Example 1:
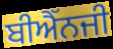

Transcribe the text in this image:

ਬੀਐੱਨਜੀ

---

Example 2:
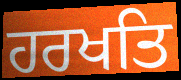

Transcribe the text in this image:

ਹਰਖਤਿ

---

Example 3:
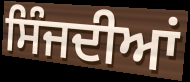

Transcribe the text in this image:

ਸਿੰਜਦੀਆਂ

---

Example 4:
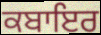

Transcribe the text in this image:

ਕਬਾਇਰ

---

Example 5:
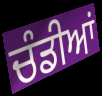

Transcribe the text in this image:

ਚੰਡੀਆਂ